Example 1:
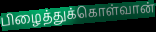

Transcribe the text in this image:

பிழைத்துக்கொள்வான்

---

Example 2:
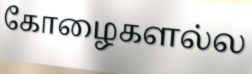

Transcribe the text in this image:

கோழைகளல்ல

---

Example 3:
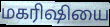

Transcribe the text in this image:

மகரிஷியை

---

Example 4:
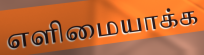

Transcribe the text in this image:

எளிமையாக்க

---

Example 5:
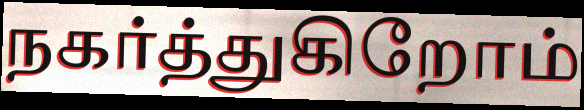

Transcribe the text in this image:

நகர்த்துகிறோம்